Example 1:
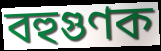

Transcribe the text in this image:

বহুগুণক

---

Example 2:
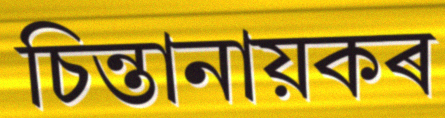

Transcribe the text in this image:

চিন্তানায়কৰ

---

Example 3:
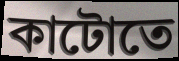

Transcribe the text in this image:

কাটোতে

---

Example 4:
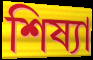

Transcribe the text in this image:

শিষ্যা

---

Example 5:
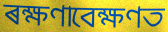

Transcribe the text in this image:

ৰক্ষণাবেক্ষণত